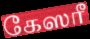
கேஸரீ